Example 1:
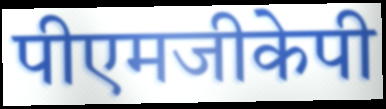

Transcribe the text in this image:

पीएमजीकेपी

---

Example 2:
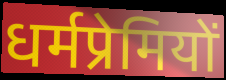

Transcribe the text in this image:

धर्मप्रेमियों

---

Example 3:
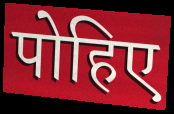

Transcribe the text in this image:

पोहिए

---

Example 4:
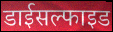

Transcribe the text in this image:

डाईसल्फाइड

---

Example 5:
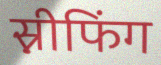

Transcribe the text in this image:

स्नीफिंग